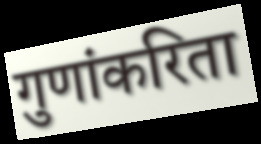
गुणांकरिता